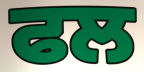
ਫਲ